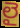
లై